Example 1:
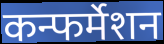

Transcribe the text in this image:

कन्‍फर्मेशन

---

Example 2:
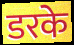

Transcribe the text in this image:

डरके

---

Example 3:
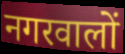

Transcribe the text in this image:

नगरवालों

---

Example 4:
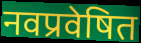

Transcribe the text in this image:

नवप्रवेषित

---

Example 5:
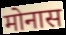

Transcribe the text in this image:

मोनास